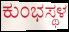
ಕುಂಭಸ್ಥಳ